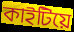
কাইটিয়ে